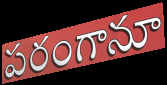
పరంగానూ